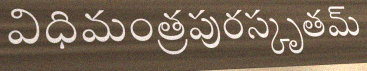
విధిమంత్రపురస్కృతమ్